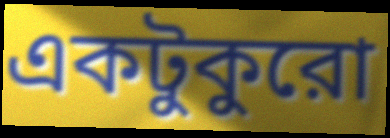
একটুকুরো